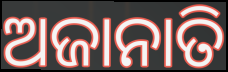
ଅଜାନାତି